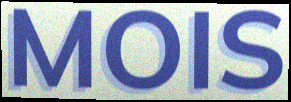
MOIS